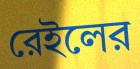
রেইলের